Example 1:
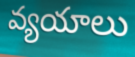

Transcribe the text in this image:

వ్యయాలు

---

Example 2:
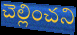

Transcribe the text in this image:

చెల్లించని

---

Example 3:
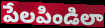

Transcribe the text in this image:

పేలపిండిలా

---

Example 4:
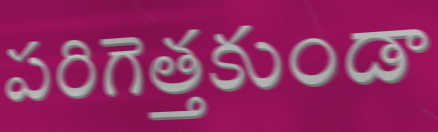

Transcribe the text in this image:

పరిగెత్తకుండా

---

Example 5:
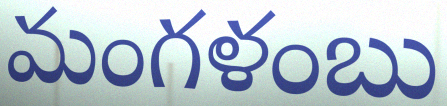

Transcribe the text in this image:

మంగళంబు